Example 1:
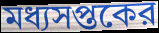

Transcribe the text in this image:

মধ্যসপ্তকের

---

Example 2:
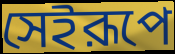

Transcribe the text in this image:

সেইরূপে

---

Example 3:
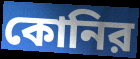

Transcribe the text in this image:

কোনির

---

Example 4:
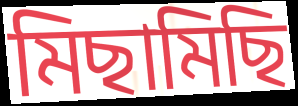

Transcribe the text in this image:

মিছামিছি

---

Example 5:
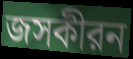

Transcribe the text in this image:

জসকীরন